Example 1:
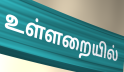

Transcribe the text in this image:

உள்ளறையில்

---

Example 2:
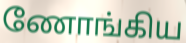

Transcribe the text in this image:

ணோங்கிய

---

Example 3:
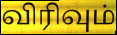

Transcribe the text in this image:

விரிவும்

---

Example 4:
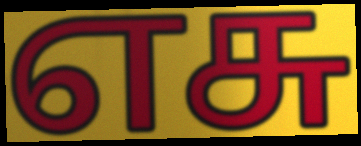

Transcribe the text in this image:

எசு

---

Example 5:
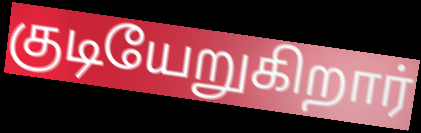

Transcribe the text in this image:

குடியேறுகிறார்